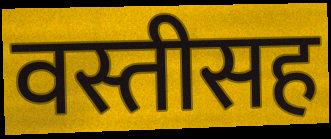
वस्तीसह